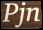
Pjn